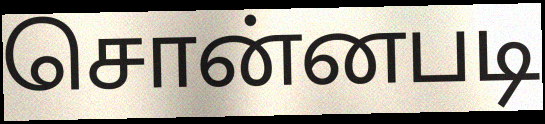
சொன்னபடி